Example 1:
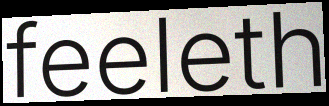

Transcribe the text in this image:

feeleth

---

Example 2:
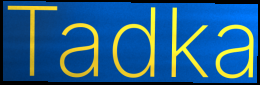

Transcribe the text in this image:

Tadka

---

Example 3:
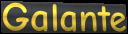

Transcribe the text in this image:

Galante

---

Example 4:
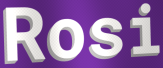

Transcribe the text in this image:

Rosi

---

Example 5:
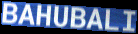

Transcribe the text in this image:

BAHUBALI